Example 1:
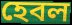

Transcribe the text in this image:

হেবল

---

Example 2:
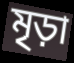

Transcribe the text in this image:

মৃড়া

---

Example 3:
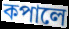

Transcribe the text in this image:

কপালে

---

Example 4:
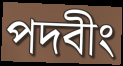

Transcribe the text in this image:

পদবীং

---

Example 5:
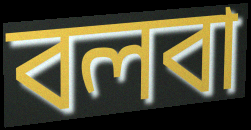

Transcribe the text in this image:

বলবা